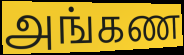
அங்கண